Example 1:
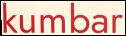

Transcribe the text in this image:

kumbar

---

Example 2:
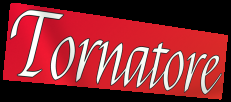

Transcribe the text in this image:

Tornatore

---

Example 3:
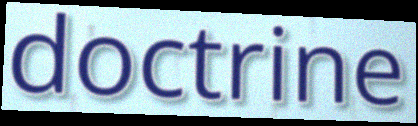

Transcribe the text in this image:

doctrine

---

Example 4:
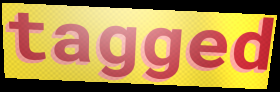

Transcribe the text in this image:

tagged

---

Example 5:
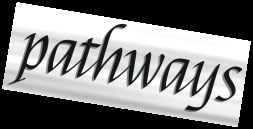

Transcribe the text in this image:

pathways